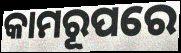
କାମରୂପରେ